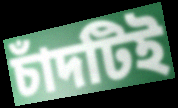
চাঁদটিই